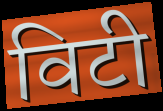
विटी